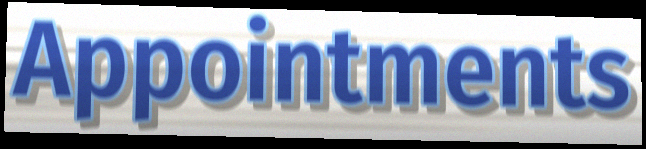
Appointments